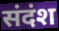
संदंश